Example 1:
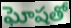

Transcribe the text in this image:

ఘోషతో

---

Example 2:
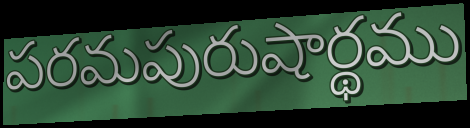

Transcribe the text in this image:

పరమపురుషార్థము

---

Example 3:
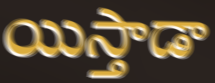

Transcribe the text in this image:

యిస్తాడా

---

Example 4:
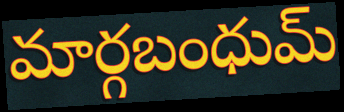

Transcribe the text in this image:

మార్గబంధుమ్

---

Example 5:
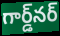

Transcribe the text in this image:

గార్డ్‌నర్